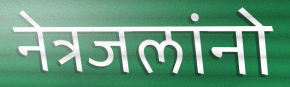
नेत्रजलांनो